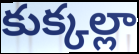
కుక్కల్లా